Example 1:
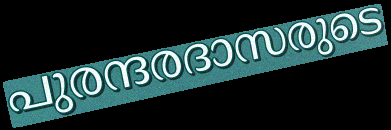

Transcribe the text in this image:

പുരന്ദരദാസരുടെ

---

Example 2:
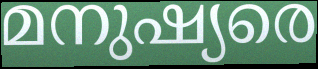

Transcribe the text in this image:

മനുഷ്യരെ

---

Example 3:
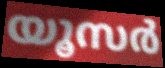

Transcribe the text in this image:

യൂസർ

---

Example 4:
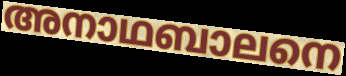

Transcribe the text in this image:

അനാഥബാലനെ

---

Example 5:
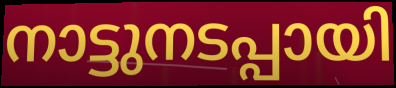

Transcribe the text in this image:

നാട്ടുനടപ്പായി